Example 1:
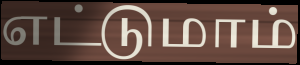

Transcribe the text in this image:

எட்டுமாம்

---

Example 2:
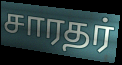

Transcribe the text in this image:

சாரதர்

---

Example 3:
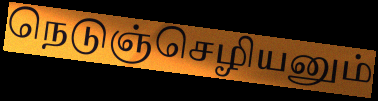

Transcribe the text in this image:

நெடுஞ்செழியனும்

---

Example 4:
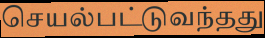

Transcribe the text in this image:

செயல்பட்டுவந்தது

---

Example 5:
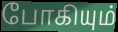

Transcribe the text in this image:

போகியும்